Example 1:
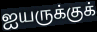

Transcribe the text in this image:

ஐயருக்குக்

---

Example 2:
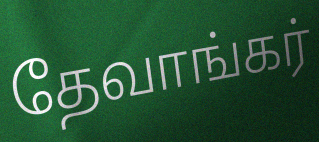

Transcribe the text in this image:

தேவாங்கர்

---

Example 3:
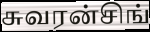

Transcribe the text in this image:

சுவரன்சிங்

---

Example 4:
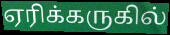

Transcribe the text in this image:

ஏரிக்கருகில்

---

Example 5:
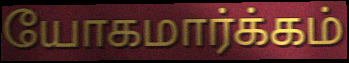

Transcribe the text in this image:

யோகமார்க்கம்